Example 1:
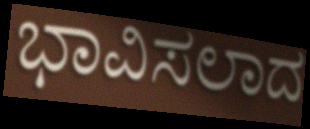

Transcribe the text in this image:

ಭಾವಿಸಲಾದ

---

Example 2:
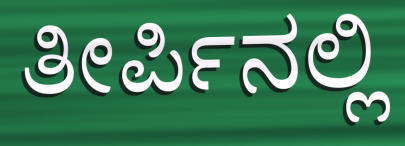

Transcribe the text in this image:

ತೀರ್ಪಿನಲ್ಲಿ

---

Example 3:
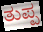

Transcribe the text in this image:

ತುಪ್ಪ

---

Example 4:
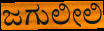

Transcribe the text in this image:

ಜಗುಲೀಲಿ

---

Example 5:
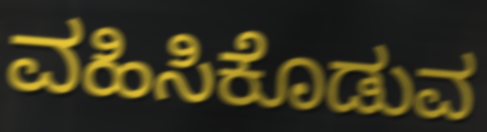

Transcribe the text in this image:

ವಹಿಸಿಕೊಡುವ